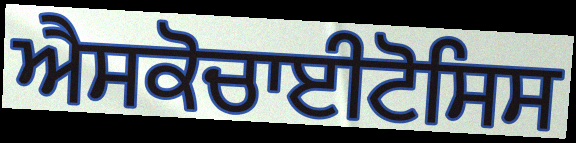
ਐਸਕੋਚਾਈਟੋਸਿਸ